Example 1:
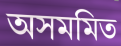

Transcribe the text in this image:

অসমমিত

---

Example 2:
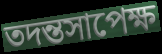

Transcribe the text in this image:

তদন্তসাপেক্ষ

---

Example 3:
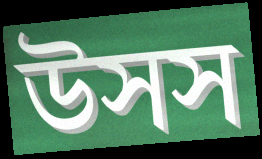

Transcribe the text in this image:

উসস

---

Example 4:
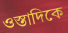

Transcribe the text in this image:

ওস্তাদিকে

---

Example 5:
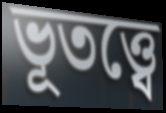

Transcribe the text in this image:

ভূতত্ত্বে